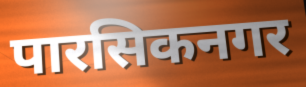
पारसिकनगर